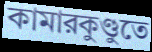
কামারকুণ্ডুতে